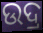
ଉଦ୍ର